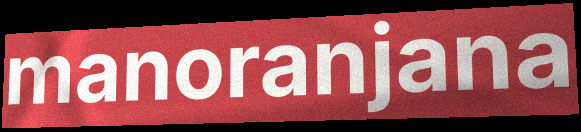
manoranjana